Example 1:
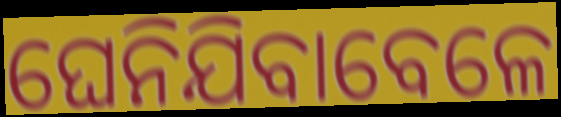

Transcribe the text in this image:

ଘେନିଯିବାବେଳେ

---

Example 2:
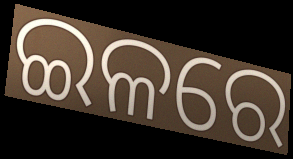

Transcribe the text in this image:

ଇଳରେ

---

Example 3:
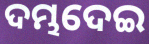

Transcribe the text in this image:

ଦମ୍ଭଦେଇ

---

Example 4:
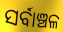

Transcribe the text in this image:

ସର୍ବାଞ୍ଚଳ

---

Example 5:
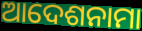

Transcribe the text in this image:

ଆଦେଶନାମା